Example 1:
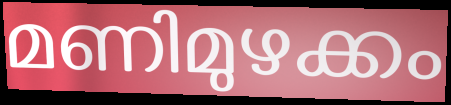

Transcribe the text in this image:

മണിമുഴക്കം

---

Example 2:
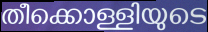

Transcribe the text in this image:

തീക്കൊള്ളിയുടെ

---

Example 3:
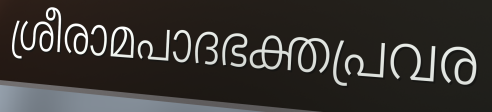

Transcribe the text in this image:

ശ്രീരാമപാദഭക്തപ്രവര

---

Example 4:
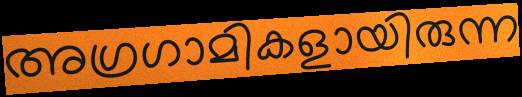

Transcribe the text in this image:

അഗ്രഗാമികളായിരുന്ന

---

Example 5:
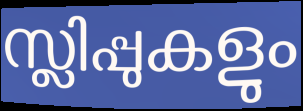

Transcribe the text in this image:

സ്ലിപ്പുകളും